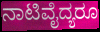
ನಾಟಿವೈದ್ಯರೂ